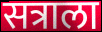
सत्राला